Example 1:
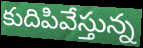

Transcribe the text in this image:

కుదిపివేస్తున్న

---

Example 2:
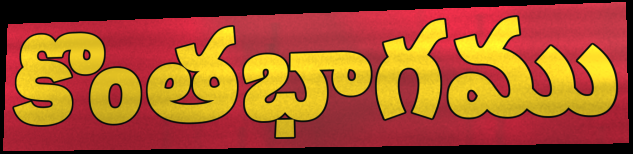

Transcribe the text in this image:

కొంతభాగము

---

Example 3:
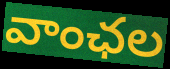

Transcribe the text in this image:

వాంఛల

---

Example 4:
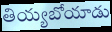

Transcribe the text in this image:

తియ్యబోయాడు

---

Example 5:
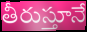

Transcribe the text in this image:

తీరుస్తూనే